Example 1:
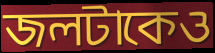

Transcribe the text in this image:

জলটাকেও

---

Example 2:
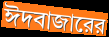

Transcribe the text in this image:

ঈদবাজারের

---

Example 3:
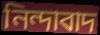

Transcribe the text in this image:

নিন্দাবাদ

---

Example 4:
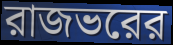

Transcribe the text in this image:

রাজভরের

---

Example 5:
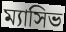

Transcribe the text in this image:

ম্যাসিভ